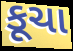
કૂચા